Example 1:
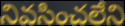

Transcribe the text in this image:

నివసించలేని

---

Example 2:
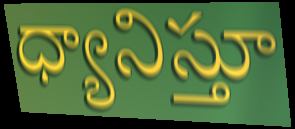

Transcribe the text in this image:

ధ్యానిస్తూ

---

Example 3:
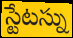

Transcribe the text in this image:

స్టేటస్ను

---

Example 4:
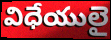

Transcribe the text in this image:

విధేయులై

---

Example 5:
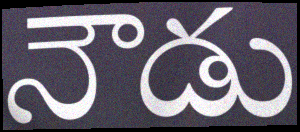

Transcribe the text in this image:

నౌడు